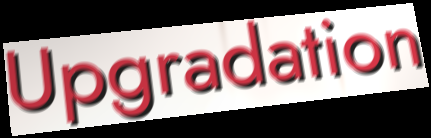
Upgradation